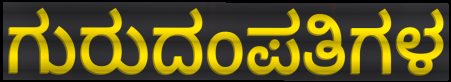
ಗುರುದಂಪತಿಗಳ